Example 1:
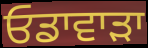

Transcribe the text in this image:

ਓਡਾਵਾੜਾ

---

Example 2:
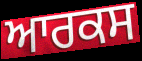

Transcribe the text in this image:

ਆਰਕਸ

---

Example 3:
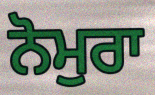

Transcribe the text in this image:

ਨੋਮੁਰਾ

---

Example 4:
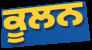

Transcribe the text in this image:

ਕੂਲਨ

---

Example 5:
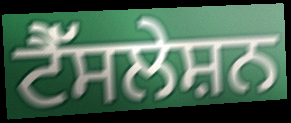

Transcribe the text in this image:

ਟੈੱਸਲੇਸ਼ਨ